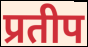
प्रतीप